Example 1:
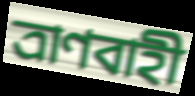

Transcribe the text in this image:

ত্রাণবাহী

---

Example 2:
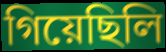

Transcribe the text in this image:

গিয়েছিলি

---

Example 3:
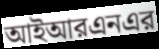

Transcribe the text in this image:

আইআরএনএর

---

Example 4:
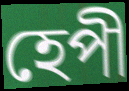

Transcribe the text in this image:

হেপী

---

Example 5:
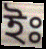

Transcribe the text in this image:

ইঃ